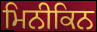
ਮਿਨੀਕਿਨ